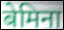
बेमिना